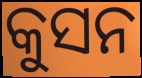
କୁସନ